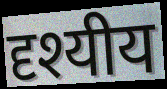
दृश्यीय